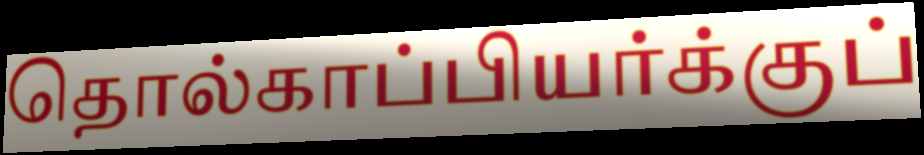
தொல்காப்பியர்க்குப்